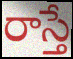
రాస్తే